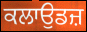
ਕਲਾਉਡਜ਼